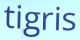
tigris